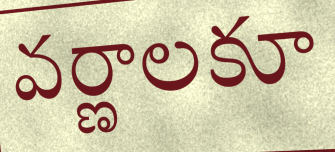
వర్ణాలకూ